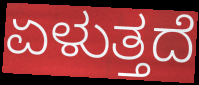
ಏಳುತ್ತದೆ